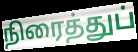
நிரைத்துப்